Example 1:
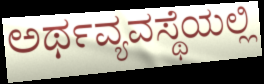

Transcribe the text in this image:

ಅರ್ಥವ್ಯವಸ್ಥೆಯಲ್ಲಿ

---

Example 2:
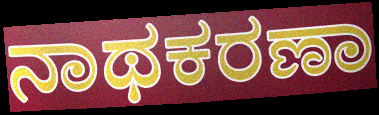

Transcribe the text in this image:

ನಾಥಕರಣಾ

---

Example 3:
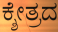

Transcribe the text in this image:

ಕ್ಶೇತ್ರದ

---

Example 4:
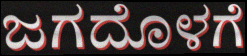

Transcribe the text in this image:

ಜಗದೊಳಗೆ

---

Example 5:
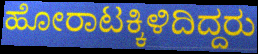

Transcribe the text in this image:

ಹೋರಾಟಕ್ಕಿಳಿದಿದ್ದರು